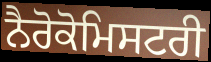
ਨੈਰੋਕੋਮਿਸਟਰੀ